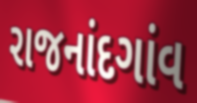
રાજનાંદગાંવ